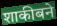
शाकीबने